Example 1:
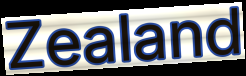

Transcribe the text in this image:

Zealand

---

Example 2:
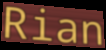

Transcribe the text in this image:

Rian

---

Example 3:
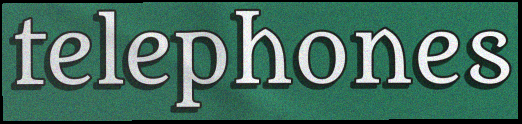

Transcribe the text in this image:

telephones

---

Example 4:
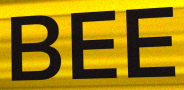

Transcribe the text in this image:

BEE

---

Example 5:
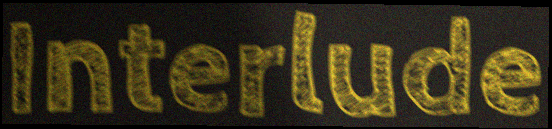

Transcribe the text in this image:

Interlude